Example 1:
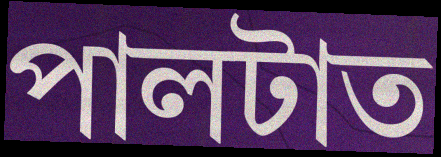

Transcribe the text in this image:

পালটাত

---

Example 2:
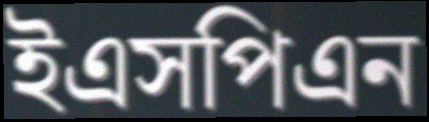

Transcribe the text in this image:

ইএসপিএন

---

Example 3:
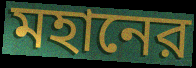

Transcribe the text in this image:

মহানের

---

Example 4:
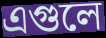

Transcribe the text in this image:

এগুলে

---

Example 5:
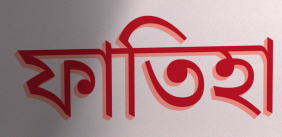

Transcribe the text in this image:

ফাতিহা